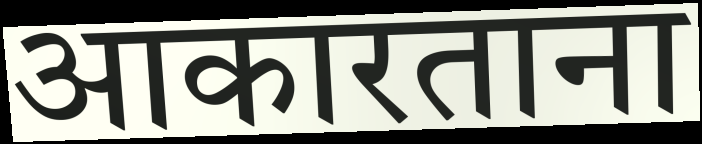
आकारताना